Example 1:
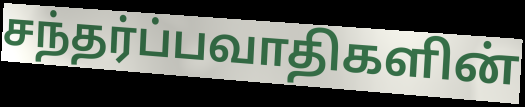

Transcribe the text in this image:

சந்தர்ப்பவாதிகளின்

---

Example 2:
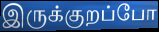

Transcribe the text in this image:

இருக்குறப்போ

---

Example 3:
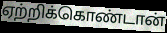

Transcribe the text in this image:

ஏற்றிக்கொண்டான்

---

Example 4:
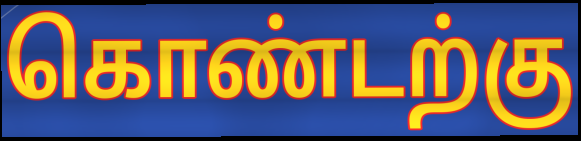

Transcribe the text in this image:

கொண்டற்கு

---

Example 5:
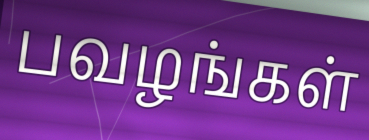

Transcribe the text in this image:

பவழங்கள்